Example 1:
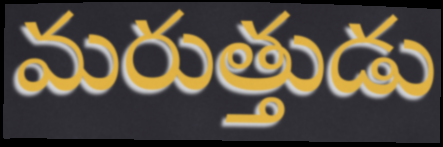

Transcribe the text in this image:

మరుత్తుడు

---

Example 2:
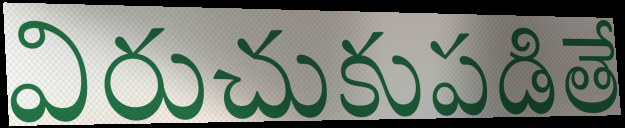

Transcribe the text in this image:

విరుచుకుపడితే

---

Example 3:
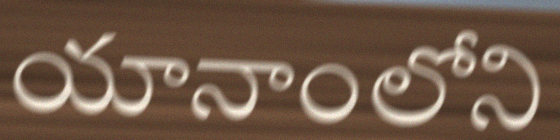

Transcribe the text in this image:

యానాంలోని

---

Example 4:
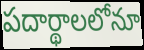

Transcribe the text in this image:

పదార్థాలలోనూ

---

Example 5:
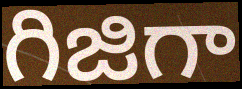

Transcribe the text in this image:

గిజిగా